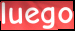
luego